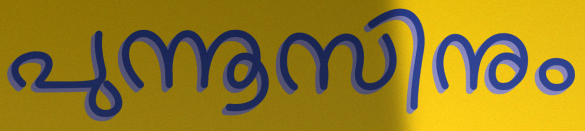
പുന്നൂസിനും